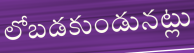
లోబడకుండునట్లు